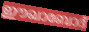
ഈഖാബോദ്